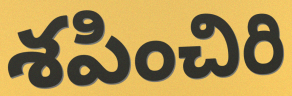
శపించిరి